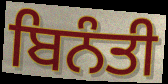
ਬਿਨੰਤੀ